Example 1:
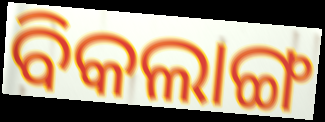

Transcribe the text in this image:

ବିକଲାଙ୍ଗ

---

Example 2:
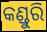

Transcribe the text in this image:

କଣ୍ଡୁରି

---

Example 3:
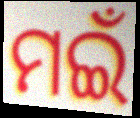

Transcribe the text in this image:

ମଇଁ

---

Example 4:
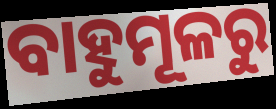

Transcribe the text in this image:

ବାହୁମୂଳରୁ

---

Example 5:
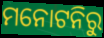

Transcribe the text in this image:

ମନୋଟନିରୁ